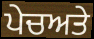
ਪੇਚਅਤੇ